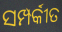
ସମ୍ପର୍କୀତ